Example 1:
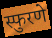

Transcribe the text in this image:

स्फुरणे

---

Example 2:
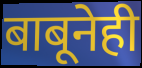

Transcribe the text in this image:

बाबूनेही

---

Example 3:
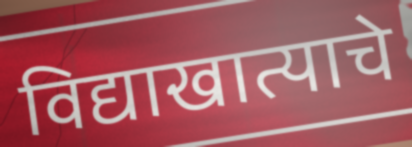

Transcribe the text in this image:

विद्याखात्याचे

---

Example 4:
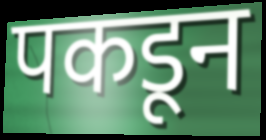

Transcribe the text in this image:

पकडून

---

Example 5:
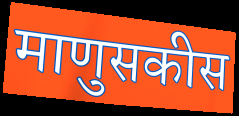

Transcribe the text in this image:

माणुसकीस